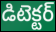
డిటెక్టర్